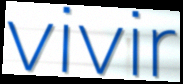
vivir